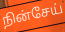
நின்சேய்